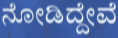
ನೋಡಿದ್ದೇವೆ